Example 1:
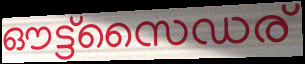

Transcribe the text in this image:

ഔട്ട്സൈഡര്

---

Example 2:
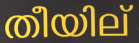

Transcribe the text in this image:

തീയില്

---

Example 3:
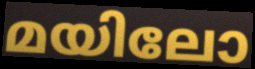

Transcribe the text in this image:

മയിലോ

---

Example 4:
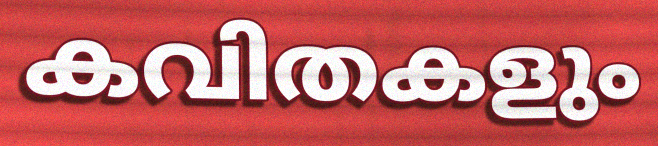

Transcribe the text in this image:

കവിതകളും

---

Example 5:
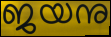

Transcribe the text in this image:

ജയനു